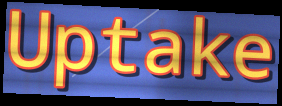
Uptake